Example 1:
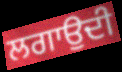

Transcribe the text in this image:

ਲਗਾਉਦੀ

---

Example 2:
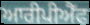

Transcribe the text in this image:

ਆਰੀਪੀਐੱਫ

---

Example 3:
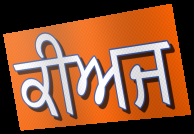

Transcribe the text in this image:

ਕੀਅਜ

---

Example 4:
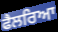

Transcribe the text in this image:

ਫੈਲਰਿਆ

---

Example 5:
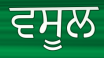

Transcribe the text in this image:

ਵਸੂਲ